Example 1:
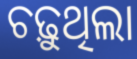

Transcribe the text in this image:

ଚଢ଼ୁଥିଲା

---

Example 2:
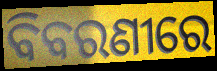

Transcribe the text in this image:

ବିବରଣୀରେ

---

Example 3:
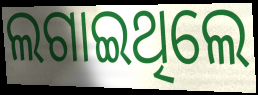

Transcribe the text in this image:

ଲଗାଇଥିଲେ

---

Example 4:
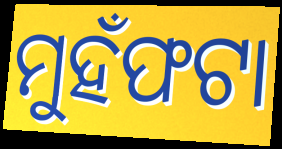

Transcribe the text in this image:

ମୁହଁଫଟା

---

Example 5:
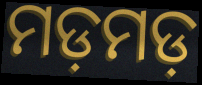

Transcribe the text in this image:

ମଡ଼ମଡ଼